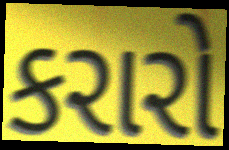
કરારો